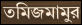
তমিজমামুর